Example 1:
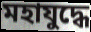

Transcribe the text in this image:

মহাযুদ্ধে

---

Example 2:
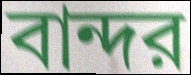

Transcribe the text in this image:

বান্দর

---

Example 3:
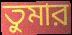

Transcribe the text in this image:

তুমার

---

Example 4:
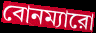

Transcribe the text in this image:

বোনম্যারো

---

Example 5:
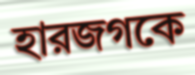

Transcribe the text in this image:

হারজগকে